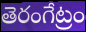
తెరంగేట్రం